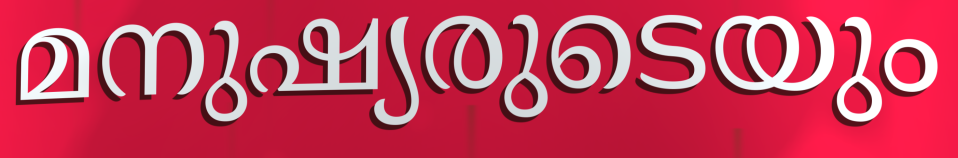
മനുഷ്യരുടെയും